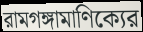
রামগঙ্গামাণিক্যের